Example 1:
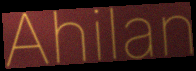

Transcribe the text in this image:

Ahilan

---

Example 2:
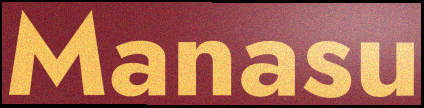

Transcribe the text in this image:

Manasu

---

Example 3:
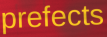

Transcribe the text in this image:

prefects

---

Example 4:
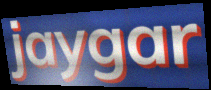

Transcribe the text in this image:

jaygar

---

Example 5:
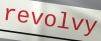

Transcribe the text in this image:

revolvy